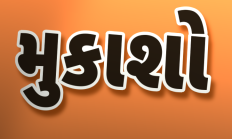
મુકાશો